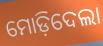
ମୋଡ଼ିଦେଲା